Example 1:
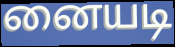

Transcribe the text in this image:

னையடி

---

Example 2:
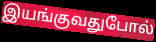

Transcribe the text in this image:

இயங்குவதுபோல்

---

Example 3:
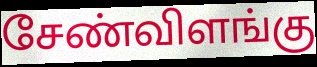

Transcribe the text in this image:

சேண்விளங்கு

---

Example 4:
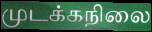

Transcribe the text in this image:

முடக்கநிலை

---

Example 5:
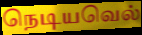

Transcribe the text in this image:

நெடியவெல்